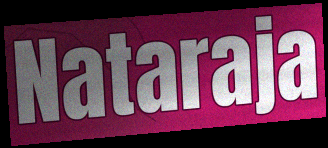
Nataraja